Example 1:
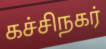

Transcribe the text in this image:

கச்சிநகர்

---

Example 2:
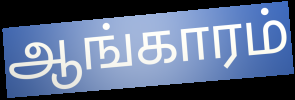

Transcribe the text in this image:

ஆங்காரம்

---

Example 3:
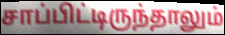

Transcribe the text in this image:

சாப்பிட்டிருந்தாலும்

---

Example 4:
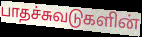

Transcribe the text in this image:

பாதச்சுவடுகளின்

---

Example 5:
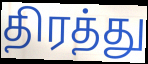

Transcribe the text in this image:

திரத்து